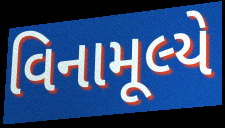
વિનામૂલ્યે